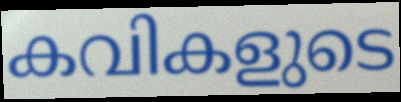
കവികളുടെ